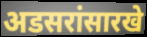
अडसरांसारखे